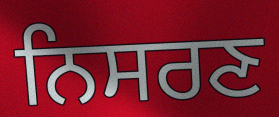
ਨਿਸਰਣ